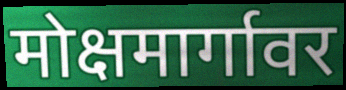
मोक्षमार्गावर